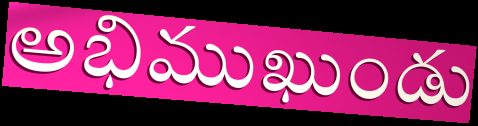
అభిముఖుండు